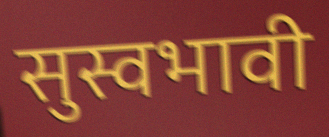
सुस्वभावी